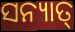
ସନ୍ୟାତ୍